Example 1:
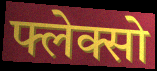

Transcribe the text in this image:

फ्लेक्सो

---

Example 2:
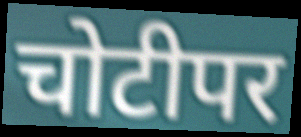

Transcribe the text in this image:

चोटीपर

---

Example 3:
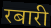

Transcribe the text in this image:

रबारी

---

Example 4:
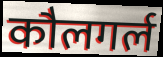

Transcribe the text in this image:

कौलगर्ल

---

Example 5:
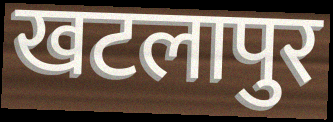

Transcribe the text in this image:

खटलापुर